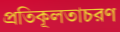
প্রতিকূলতাচরণ